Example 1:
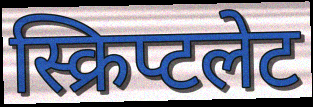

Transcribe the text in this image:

स्क्रिप्टलेट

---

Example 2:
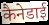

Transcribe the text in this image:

कैनेडाई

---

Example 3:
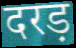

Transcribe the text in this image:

दरड़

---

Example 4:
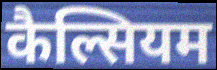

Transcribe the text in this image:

कैल्सियम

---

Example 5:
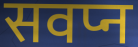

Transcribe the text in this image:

सवप्न